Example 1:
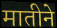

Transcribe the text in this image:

मातीने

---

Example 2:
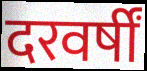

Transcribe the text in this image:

दरवर्षीं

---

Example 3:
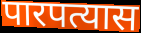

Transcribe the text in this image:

पारपत्यास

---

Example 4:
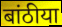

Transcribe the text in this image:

बांठीया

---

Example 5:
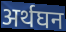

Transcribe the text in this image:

अर्थघन